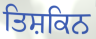
ਤਿਸ਼ਕਿਨ